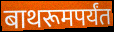
बाथरूमपर्यंत